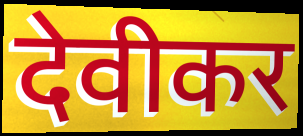
देवीकर